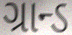
ગ્રાન્ડ